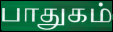
பாதுகம்